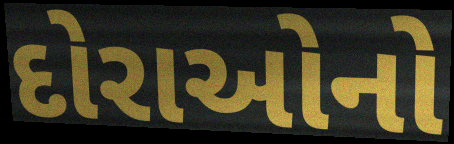
દોરાઓનો